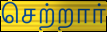
செற்றார்